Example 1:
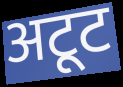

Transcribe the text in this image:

अटूट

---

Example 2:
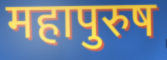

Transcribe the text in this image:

महापुरुष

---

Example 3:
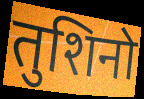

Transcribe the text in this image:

तुशिनो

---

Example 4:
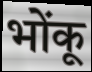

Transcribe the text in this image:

भोंकू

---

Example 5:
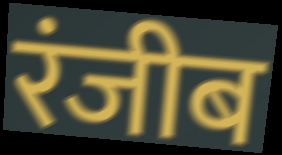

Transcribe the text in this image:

रंजीब